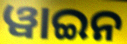
ୱାଇନ